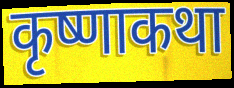
कृष्णाकथा